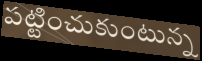
పట్టించుకుంటున్న